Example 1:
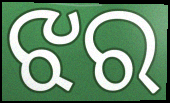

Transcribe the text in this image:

ଝର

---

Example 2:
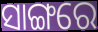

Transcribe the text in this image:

ସାଙ୍ଗରେ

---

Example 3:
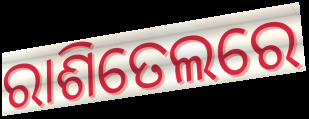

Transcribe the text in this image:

ରାଶିତେଲରେ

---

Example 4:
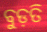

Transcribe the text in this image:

ବୁଡ଼ତି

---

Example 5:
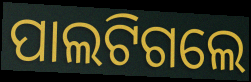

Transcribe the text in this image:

ପାଲଟିଗଲେ